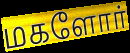
மகளோர்